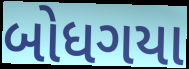
બોધગયા